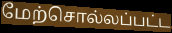
மேற்சொல்லப்பட்ட